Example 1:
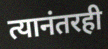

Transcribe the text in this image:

त्यानंतरही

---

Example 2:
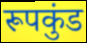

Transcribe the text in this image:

रूपकुंड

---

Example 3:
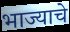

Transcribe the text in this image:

भाज्याचे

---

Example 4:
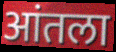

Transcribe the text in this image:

आंतला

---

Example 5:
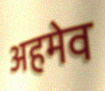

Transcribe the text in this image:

अहमेव